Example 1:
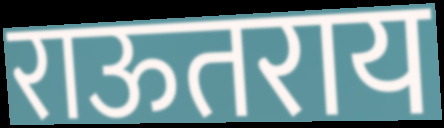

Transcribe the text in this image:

राऊतराय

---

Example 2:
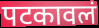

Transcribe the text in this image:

पटकावलं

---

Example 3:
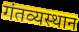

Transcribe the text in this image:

गंतव्यस्थान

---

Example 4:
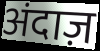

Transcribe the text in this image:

अंदाज़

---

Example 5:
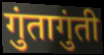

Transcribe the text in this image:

गुंतागुंती